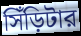
সিঁড়িটার